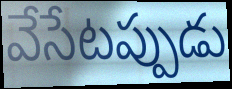
వేసేటప్పుడు